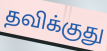
தவிக்குது